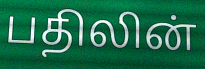
பதிலின்